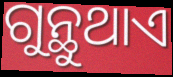
ଗୁନ୍ଥୁଥାଏ